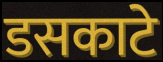
डसकाटे